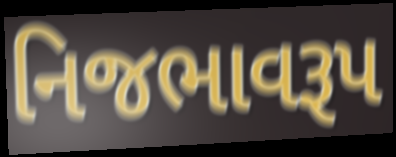
નિજભાવરૂપ